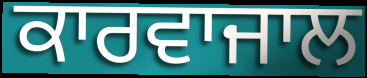
ਕਾਰਵਾਜਾਲ